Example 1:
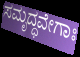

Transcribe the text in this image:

ಸಮೃದ್ಧವೇಗಾಃ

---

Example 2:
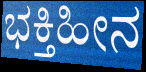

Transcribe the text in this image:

ಭಕ್ತಿಹೀನ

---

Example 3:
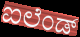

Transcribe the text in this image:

ಐಲೆಂಡ್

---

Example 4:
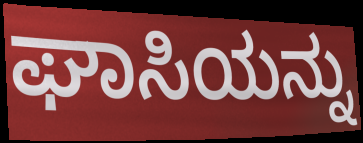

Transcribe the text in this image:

ಘಾಸಿಯನ್ನು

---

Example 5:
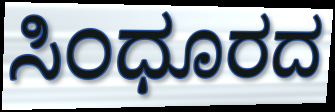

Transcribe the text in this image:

ಸಿಂಧೂರದ